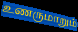
உணருமாறும்